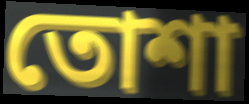
তোশা